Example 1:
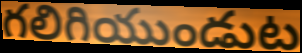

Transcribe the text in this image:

గలిగియుండుట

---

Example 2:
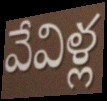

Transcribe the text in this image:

వేవిళ్ల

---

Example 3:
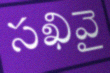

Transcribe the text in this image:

సఖివై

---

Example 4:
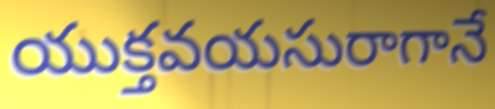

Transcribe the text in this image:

యుక్తవయసురాగానే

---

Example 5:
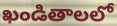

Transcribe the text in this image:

ఖండితాలలో